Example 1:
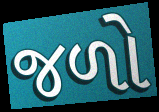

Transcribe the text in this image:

જળો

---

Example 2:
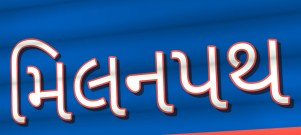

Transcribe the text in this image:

મિલનપથ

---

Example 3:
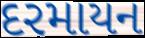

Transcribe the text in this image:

દરમાયન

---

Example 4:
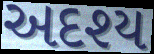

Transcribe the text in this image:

અદશ્ય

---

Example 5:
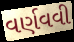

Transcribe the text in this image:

વર્ણવવી